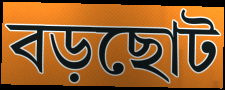
বড়ছোট